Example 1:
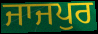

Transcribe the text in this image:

ਜਾਜਪੁਰ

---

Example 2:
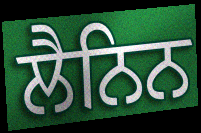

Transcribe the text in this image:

ਲੈਨਿਨ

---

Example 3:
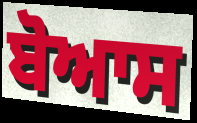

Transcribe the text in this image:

ਬੋਆਸ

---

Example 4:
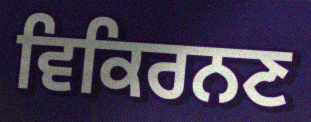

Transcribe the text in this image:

ਵਿਕਿਰਨਣ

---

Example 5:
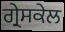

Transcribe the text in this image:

ਗ੍ਰੇਸਕੇਲ